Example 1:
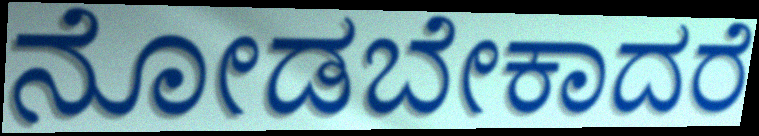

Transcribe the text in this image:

ನೋಡಬೇಕಾದರೆ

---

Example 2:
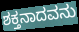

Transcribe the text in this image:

ಶಕ್ತನಾದವನು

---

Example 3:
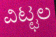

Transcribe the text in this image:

ವಿಟ್ಟಲ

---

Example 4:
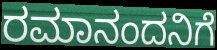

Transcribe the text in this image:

ರಮಾನಂದನಿಗೆ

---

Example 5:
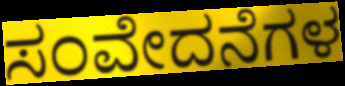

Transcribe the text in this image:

ಸಂವೇದನೆಗಳ